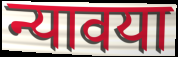
न्यावया